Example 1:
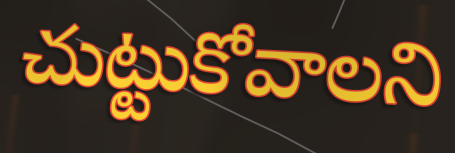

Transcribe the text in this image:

చుట్టుకోవాలని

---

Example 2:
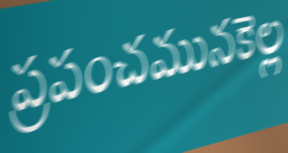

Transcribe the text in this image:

ప్రపంచమునకెల్ల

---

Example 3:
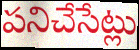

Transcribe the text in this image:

పనిచేసేట్లు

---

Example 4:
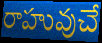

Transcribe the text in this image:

రాహువుచే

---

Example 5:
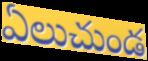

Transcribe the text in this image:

ఏలుచుండ